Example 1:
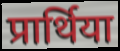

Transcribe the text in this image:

प्रार्थिया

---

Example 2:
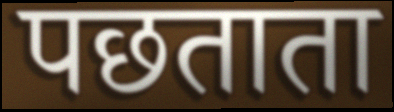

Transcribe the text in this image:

पछताता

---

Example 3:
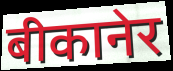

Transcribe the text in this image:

बीकानेर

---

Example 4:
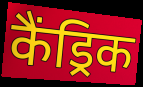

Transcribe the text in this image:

कैंड्रिक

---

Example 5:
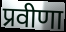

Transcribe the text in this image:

प्रवीणा